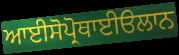
ਆਈਸੋਪ੍ਰੋਥਾਈੳਲਾਨ